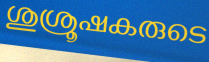
ശുശ്രൂഷകരുടെ